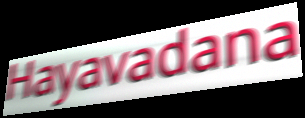
Hayavadana